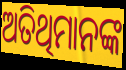
ଅତିଥିମାନଙ୍କ